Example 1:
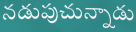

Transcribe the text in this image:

నడుపుచున్నాడు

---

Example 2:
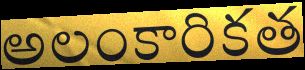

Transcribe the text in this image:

అలంకారికత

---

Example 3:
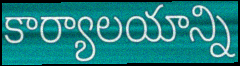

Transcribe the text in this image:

కార్యాలయాన్ని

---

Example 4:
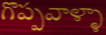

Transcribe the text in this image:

గొప్పవాళ్ళా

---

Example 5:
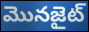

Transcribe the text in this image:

మొనజైట్